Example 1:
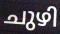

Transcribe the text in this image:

ചുഴി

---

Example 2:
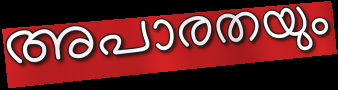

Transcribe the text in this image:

അപാരതയും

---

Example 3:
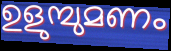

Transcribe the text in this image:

ഉളുമ്പുമണം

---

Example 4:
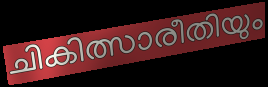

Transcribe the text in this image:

ചികിത്സാരീതിയും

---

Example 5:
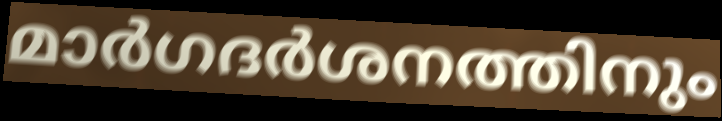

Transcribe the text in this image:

മാർഗദർശനത്തിനും